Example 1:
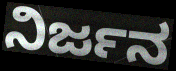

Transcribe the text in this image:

ನಿರ್ಜನ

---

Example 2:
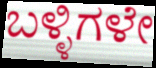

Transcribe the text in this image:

ಬಳ್ಳಿಗಳೇ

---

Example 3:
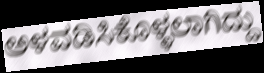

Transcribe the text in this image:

ಅಳವಡಿಸಿಕೊಳ್ಳಲಾಗಿದ್ದು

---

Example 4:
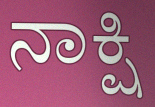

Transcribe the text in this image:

ನಾಕ್ಷಿ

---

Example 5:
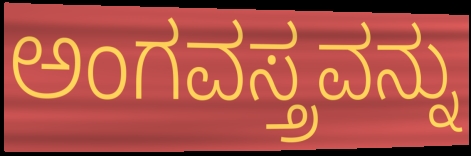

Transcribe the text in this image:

ಅಂಗವಸ್ತ್ರವನ್ನು